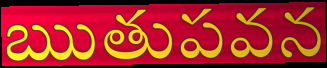
ఋతుపవన